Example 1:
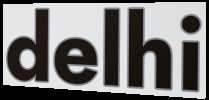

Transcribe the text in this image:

delhi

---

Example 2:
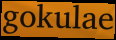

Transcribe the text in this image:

gokulae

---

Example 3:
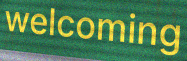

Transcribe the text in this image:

welcoming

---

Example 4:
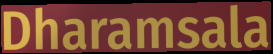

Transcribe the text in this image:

Dharamsala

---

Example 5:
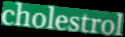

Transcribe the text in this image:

cholestrol